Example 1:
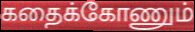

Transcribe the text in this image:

கதைக்கோணும்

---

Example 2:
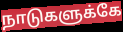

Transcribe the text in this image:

நாடுகளுக்கே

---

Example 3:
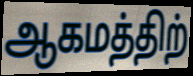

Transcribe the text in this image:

ஆகமத்திற்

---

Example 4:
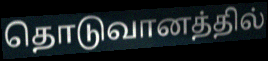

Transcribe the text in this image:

தொடுவானத்தில்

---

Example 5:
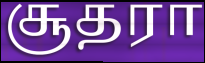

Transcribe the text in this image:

சூதரா